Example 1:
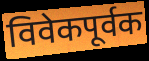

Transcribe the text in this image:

विवेकपूर्वक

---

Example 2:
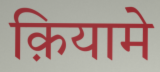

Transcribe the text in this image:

क़ियामे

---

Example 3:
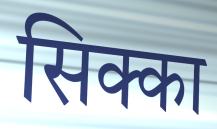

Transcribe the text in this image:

सिक्का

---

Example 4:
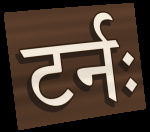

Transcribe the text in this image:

टर्नः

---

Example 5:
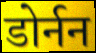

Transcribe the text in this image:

डोर्नन